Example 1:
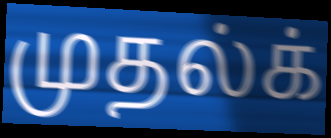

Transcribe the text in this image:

முதல்க்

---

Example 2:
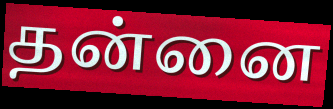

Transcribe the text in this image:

தன்னை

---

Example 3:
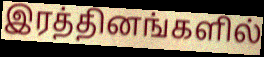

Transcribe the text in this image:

இரத்தினங்களில்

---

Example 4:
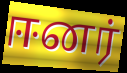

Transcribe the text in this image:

ஈனர்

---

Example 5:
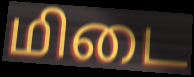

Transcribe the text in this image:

மிடை